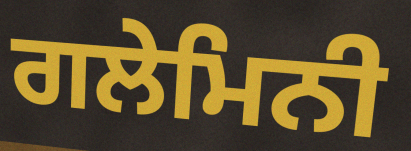
ਗਲੇਮਿਨੀ